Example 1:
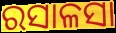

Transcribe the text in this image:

ରସାଳସା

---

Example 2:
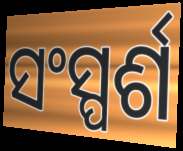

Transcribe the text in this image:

ସଂସ୍ପର୍ଶ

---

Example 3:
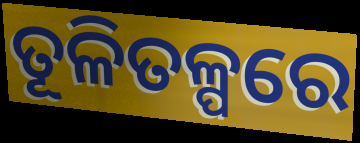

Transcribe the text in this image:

ତୂଳିତଳ୍ପରେ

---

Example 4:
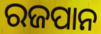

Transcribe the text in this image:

ରଜପାନ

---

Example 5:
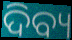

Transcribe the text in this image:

ଦିବ୍ୟ